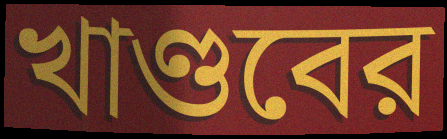
খাণ্ডবের